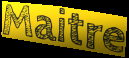
Maitre